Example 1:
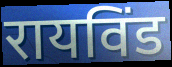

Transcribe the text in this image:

रायविंड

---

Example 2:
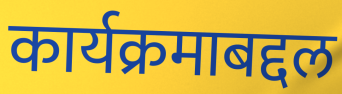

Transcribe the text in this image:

कार्यक्रमाबद्दल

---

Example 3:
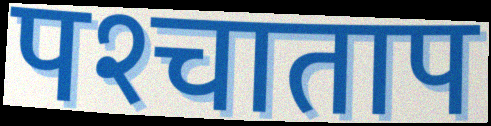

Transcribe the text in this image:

पश्चाताप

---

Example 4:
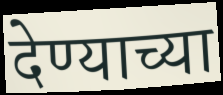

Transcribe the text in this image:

देण्याच्या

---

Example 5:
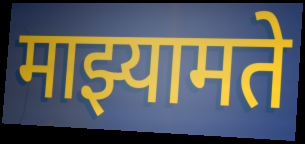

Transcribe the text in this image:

माझ्यामते